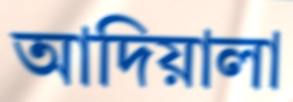
আদিয়ালা